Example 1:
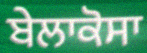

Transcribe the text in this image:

ਬੇਲਾਕੋਸਾ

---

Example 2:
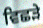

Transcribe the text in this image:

ਵਿਛੜੇ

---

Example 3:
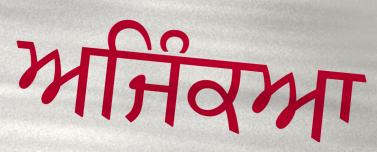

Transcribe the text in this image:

ਅਜਿੰਕਆ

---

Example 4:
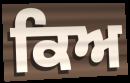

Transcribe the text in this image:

ਕਿਅ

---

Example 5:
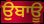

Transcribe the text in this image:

ਉਬਾਊ